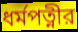
ধর্মপত্নীর